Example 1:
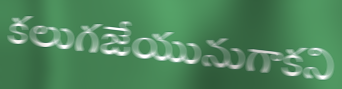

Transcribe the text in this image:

కలుగజేయునుగాకని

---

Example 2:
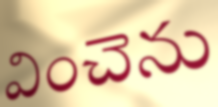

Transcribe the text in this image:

వించెను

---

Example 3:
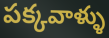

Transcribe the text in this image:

పక్కవాళ్ళు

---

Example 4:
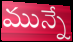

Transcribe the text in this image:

మున్నే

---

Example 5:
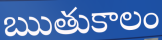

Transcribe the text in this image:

ఋతుకాలం